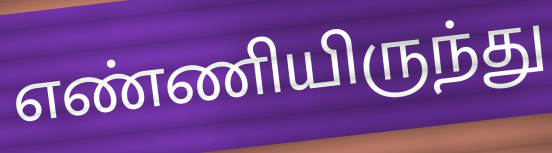
எண்ணியிருந்து